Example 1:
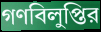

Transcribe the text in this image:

গণবিলুপ্তির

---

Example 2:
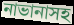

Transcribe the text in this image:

নাভানাসহ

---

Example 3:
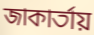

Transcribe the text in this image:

জাকার্তায়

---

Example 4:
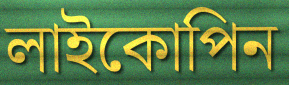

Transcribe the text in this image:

লাইকোপিন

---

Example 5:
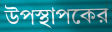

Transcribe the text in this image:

উপস্থাপকের